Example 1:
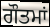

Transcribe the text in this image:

ਗੌਤਮਾਂ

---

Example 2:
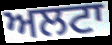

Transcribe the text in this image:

ਅਲਟਾ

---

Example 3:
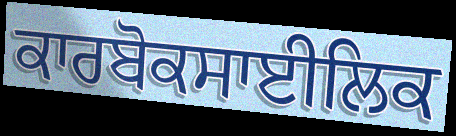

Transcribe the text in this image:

ਕਾਰਬੋਕਸਾਈਲਿਕ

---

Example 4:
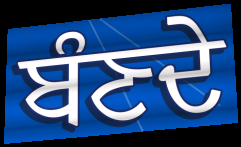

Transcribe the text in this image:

ਬੰਣਦੇ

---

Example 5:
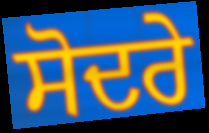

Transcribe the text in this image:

ਸੋਦਰੇ